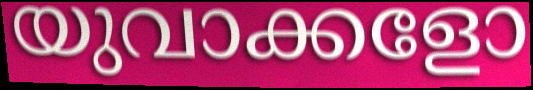
യുവാക്കളോ